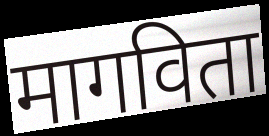
मागविता